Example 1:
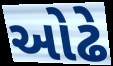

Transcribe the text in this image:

ઓઢે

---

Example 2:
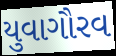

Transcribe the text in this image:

યુવાગૌરવ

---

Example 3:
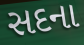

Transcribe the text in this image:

સદના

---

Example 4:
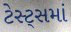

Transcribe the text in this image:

ટેસ્ટ્સમાં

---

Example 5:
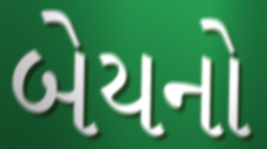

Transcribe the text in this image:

બેયનો